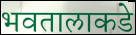
भवतालाकडे